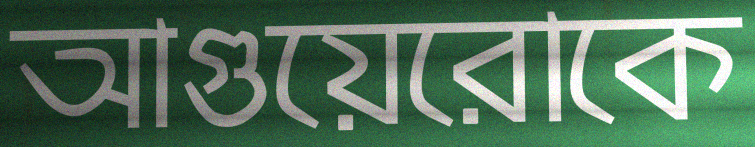
আগুয়েরোকে